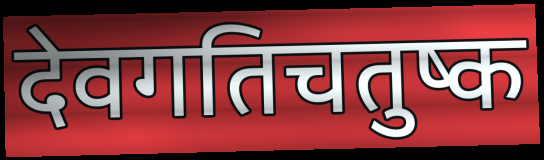
देवगतिचतुष्क